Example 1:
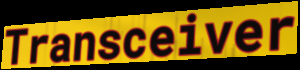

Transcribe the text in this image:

Transceiver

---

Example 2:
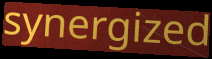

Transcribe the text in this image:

synergized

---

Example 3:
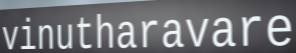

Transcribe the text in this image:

vinutharavare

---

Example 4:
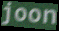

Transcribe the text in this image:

joon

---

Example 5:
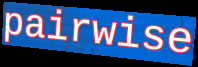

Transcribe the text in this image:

pairwise